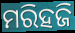
ମରିହଜି